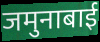
जमुनाबाई